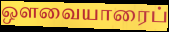
ஔவையாரைப்